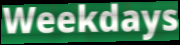
Weekdays